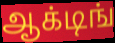
ஆக்டிங்